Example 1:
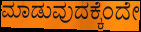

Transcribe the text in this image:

ಮಾಡುವುದಕ್ಕೆಂದೇ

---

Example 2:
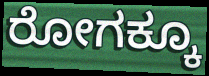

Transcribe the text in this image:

ರೋಗಕ್ಕೂ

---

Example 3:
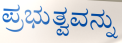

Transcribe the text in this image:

ಪ್ರಭುತ್ವವನ್ನು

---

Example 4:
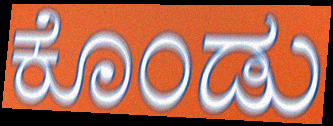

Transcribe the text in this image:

ಕೊಂಡು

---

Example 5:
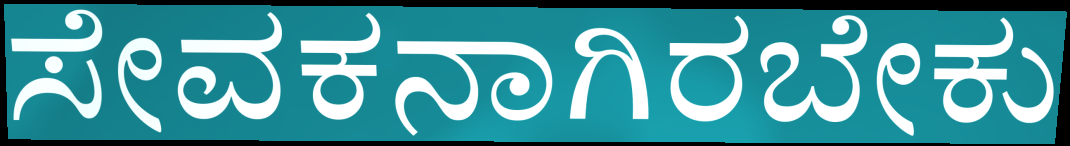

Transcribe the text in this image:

ಸೇವಕನಾಗಿರಬೇಕು